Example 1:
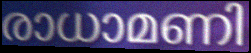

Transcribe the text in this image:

രാധാമണി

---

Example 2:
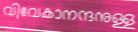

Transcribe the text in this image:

വിവേകാനന്ദനുള്ള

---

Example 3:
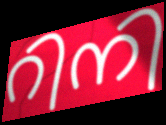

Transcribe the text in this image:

റിനി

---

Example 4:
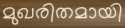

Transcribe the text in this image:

മുഖരിതമായി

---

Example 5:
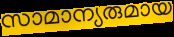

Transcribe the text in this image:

സാമാന്യരുമായ